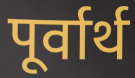
पूर्वार्थ